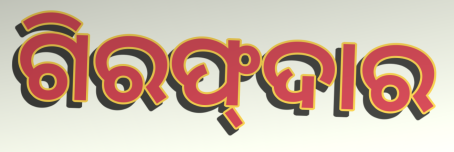
ଗିରଫ୍‍ଦାର